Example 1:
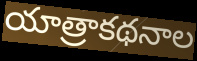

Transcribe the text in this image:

యాత్రాకథనాల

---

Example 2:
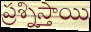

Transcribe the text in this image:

ప్రశ్నిస్తాయి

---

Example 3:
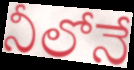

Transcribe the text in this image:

నీలోనే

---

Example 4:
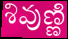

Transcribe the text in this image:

శివుణ్ణి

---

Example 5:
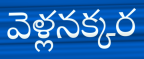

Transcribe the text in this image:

వెళ్లనక్కర